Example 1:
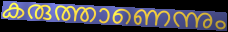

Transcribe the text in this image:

കരുത്താണെന്നും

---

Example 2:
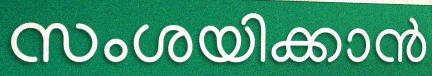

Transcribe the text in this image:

സംശയിക്കാൻ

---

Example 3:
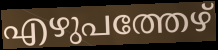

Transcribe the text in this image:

എഴുപത്തേഴ്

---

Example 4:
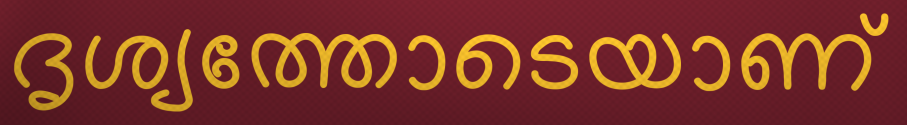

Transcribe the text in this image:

ദൃശ്യത്തോടെയാണ്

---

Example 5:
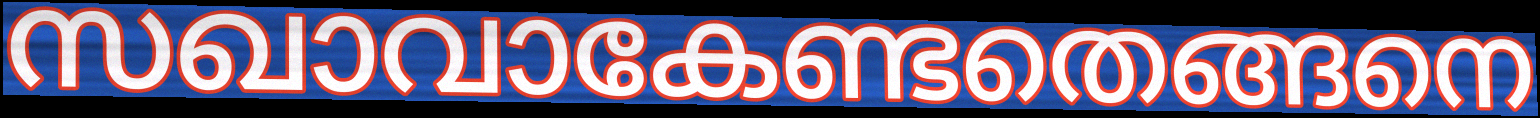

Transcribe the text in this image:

സഖാവാകേണ്ടതെങ്ങനെ